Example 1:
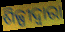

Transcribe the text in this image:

ଶିଳ୍ପୀଦ୍ୱାରା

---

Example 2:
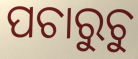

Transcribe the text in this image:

ପଚାରୁଚୁ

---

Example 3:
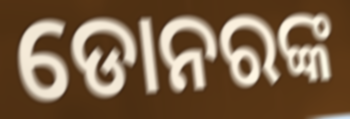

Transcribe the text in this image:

ଡୋନରଙ୍କ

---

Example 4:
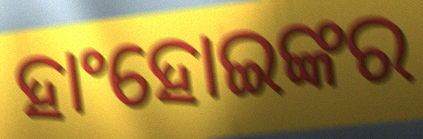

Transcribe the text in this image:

ହାଂହୋଇଙ୍କର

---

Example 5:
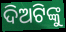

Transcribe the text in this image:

ଦିଅଟିଙ୍କୁ